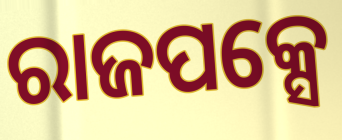
ରାଜପକ୍ସେ